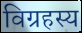
विग्रहस्य